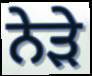
ਨੇਡ਼ੇ